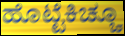
ಹೊಟ್ಟೆಕಿಚ್ಚೂ